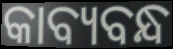
କାବ୍ୟବନ୍ଧ